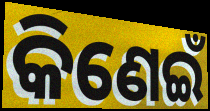
କିଣେଇଁ